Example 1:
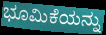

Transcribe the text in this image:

ಭೂಮಿಕೆಯನ್ನು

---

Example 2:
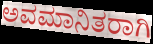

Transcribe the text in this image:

ಅವಮಾನಿತರಾಗಿ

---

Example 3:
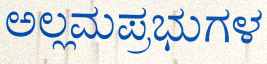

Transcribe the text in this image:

ಅಲ್ಲಮಪ್ರಭುಗಳ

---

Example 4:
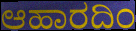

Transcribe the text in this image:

ಆಹಾರದಿಂ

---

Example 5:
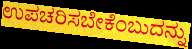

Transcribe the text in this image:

ಉಪಚರಿಸಬೇಕೆಂಬುದನ್ನು